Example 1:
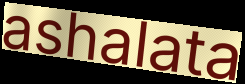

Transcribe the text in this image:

ashalata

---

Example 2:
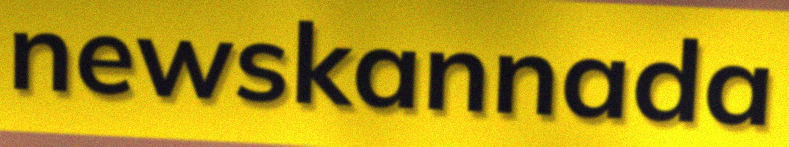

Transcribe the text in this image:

newskannada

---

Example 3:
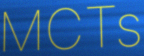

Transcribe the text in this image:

MCTs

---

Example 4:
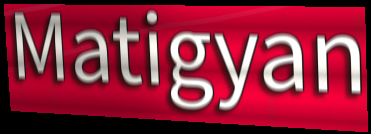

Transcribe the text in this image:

Matigyan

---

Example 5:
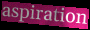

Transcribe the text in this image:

aspiration